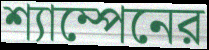
শ্যাম্পেনের